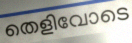
തെളിവോടെ